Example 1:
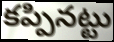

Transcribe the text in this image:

కప్పినట్టు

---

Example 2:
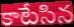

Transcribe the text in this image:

కాటేసిన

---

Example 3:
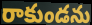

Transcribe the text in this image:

రాకుండను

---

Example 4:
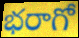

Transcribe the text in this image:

భరాగో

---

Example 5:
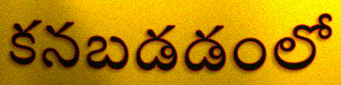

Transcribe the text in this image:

కనబడడంలో